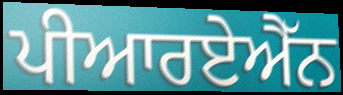
ਪੀਆਰਏਐੱਨ